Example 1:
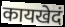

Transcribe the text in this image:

कायखेदं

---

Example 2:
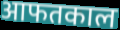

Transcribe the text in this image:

आफतकाल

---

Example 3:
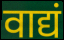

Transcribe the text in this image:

वाद्यं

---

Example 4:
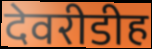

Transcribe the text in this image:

देवरीडीह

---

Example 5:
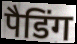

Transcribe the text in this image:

पैडिंग